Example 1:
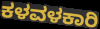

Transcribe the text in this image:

ಕಳವಳಕಾರಿ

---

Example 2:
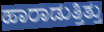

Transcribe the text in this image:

ಹಾರಾಡುತ್ತಿತ್ತು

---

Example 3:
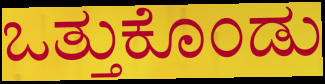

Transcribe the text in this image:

ಒತ್ತುಕೊಂಡು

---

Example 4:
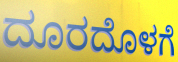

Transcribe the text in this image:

ದೂರದೊಳಗೆ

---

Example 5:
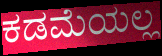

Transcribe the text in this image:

ಕಡಮೆಯಲ್ಲ